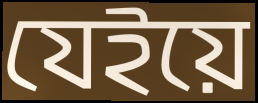
যেইয়ে